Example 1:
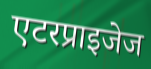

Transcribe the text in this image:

एटरप्राइजेज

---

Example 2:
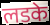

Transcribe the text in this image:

लडके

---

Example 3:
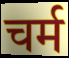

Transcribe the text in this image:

चर्म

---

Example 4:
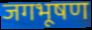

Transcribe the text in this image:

जगभूषण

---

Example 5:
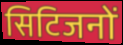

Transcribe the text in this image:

सिटिजनों